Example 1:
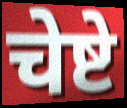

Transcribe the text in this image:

चेष्टे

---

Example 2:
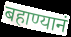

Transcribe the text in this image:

बहाण्यानं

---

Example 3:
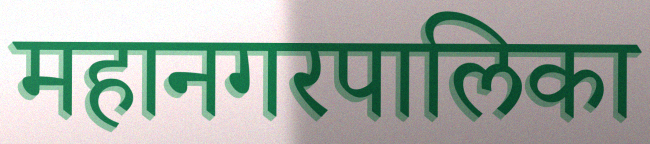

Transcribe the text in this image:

महानगरपालिका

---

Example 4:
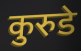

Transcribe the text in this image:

कुरुडे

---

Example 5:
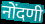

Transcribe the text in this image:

नोंदणी